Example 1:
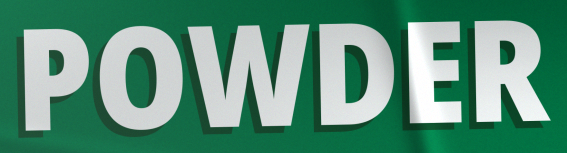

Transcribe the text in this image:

POWDER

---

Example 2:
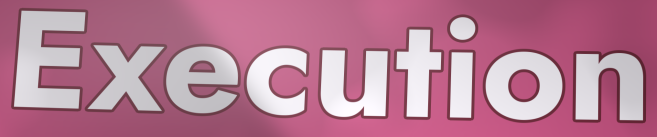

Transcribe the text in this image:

Execution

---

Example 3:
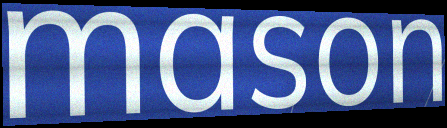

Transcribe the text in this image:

mason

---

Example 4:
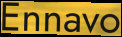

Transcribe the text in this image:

Ennavo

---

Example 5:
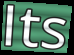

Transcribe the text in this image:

Its